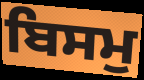
ਬਿਸਮੁ